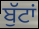
ਬੁੱਟਾਂ